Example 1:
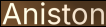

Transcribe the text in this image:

Aniston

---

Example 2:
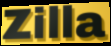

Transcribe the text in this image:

Zilla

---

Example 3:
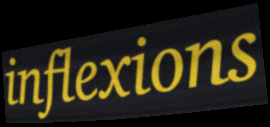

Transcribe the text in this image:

inflexions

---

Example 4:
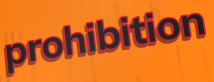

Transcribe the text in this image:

prohibition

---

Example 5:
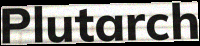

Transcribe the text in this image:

Plutarch